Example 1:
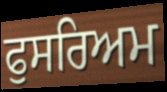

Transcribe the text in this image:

ਫੁਸਰਿਅਮ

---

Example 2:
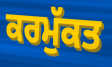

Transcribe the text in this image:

ਕਰਮੁੱਕਤ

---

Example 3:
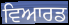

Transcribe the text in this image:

ਵਿਆਰਡ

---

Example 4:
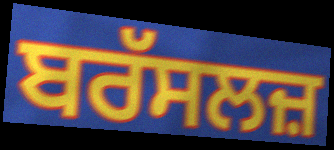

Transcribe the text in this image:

ਬਰੱਸਲਜ਼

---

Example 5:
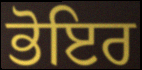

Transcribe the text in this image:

ਭੋਇਰ